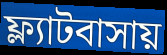
ফ্ল্যাটবাসায়